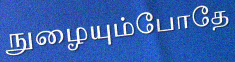
நுழையும்போதே